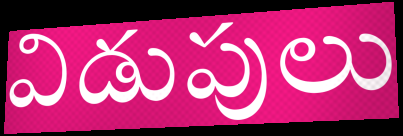
విడుపులు